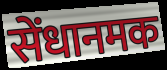
सेंधानमक